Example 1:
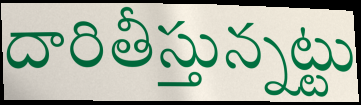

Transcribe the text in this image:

దారితీస్తున్నట్టు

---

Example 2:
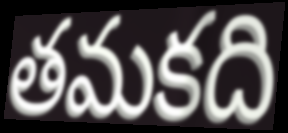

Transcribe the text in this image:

తమకది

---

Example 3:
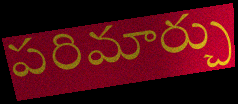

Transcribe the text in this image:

పరిమార్చు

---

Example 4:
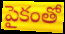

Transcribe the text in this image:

పైకంతో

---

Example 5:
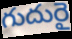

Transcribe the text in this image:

గుదురై